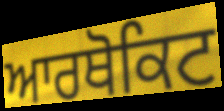
ਆਰਥੋਕਿਟ